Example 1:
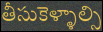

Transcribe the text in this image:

తీసుకెళ్ళాల్సి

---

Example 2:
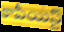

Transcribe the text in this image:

కాపీయిస్ట్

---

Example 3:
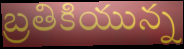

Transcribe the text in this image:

బ్రతికియున్న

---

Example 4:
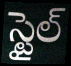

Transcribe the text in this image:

స్టైల్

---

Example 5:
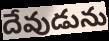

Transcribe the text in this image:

దేవుడును